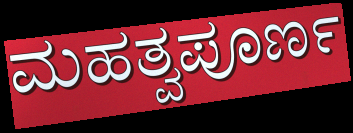
ಮಹತ್ವಪೂರ್ಣ